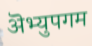
ऄभ्युपगम